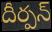
దీర్పన్